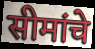
सीमांचे